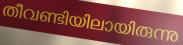
തീവണ്ടിയിലായിരുന്നു